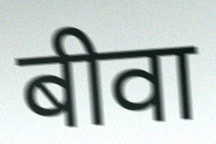
बीवा